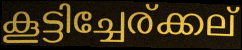
കൂട്ടിച്ചേര്ക്കല്